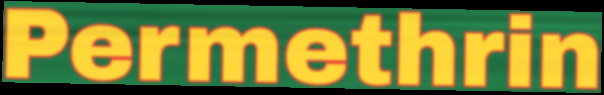
Permethrin